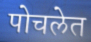
पोचलेत